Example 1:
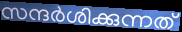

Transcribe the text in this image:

സന്ദർശിക്കുന്നത്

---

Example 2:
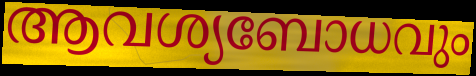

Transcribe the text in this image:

ആവശ്യബോധവും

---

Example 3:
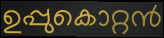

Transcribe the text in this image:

ഉപ്പുകൊറ്റൻ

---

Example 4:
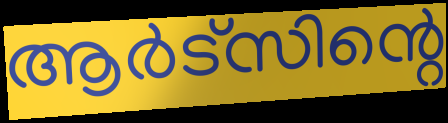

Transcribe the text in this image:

ആർട്സിന്റെ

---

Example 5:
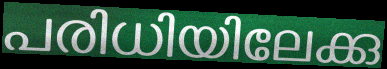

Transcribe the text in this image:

പരിധിയിലേക്കു